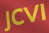
JCVI